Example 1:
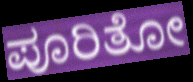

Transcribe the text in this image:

ಪೂರಿತೋ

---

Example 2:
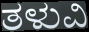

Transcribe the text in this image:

ತಳುವಿ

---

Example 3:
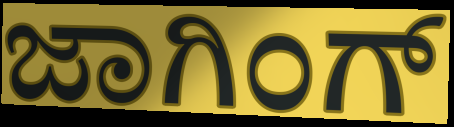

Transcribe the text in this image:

ಜಾಗಿಂಗ್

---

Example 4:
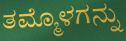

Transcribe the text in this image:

ತಮ್ಮೊಳಗನ್ನು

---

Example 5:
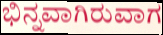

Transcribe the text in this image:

ಭಿನ್ನವಾಗಿರುವಾಗ